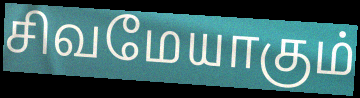
சிவமேயாகும்